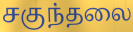
சகுந்தலை